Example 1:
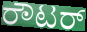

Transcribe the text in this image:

ರೌಟರ್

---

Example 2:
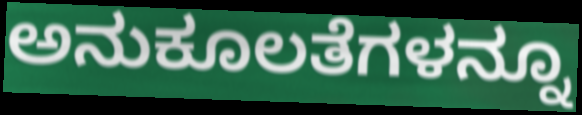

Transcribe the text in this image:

ಅನುಕೂಲತೆಗಳನ್ನೂ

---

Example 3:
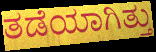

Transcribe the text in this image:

ತಡೆಯಾಗಿತ್ತು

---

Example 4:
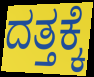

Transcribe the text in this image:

ದತ್ತಕ್ಕೆ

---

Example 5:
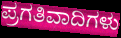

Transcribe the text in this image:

ಪ್ರಗತಿವಾದಿಗಳು